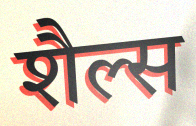
शैल्स